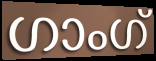
ഗാംഗ്